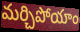
మర్చిపోయాం